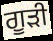
ਗੂੜੀ